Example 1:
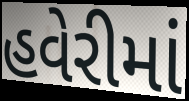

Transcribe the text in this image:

હવેરીમાં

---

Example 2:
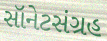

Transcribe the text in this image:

સૉનેટસંગ્રહ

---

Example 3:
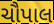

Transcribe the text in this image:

ચૌપાલ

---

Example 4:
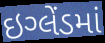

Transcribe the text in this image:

ઇગ્લેંડમાં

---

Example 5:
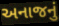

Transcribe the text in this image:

અનાજનું